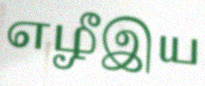
எழீஇய